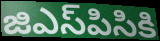
జిఎస్‌పిసికి